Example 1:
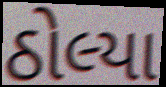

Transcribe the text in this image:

ઠોલ્યા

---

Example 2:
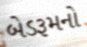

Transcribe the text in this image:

બેડરૂમનો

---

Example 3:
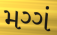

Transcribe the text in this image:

મગ્ગં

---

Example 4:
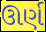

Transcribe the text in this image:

ઊર્ણ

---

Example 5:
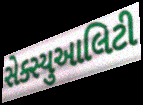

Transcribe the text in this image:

સેક્સ્યુઆલિટી